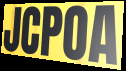
JCPOA